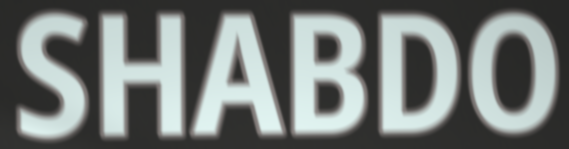
SHABDO